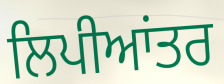
ਲਿਪੀਆਂਤਰ